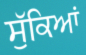
ਸੁੱਕਿਆਂ